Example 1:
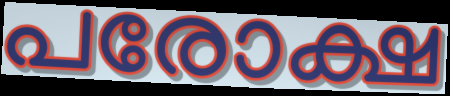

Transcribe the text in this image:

പരോക്ഷ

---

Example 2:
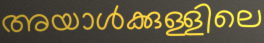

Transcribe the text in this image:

അയാൾക്കുള്ളിലെ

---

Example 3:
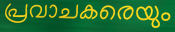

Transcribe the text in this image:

പ്രവാചകരെയും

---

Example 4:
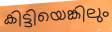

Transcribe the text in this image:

കിട്ടിയെങ്കിലും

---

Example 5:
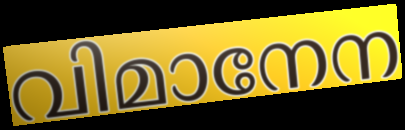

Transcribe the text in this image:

വിമാനേന